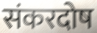
संकरदोष